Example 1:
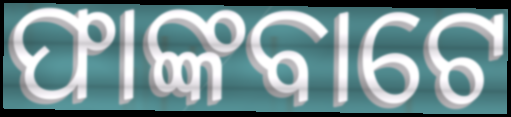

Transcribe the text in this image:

ଫାଙ୍କବାଟେ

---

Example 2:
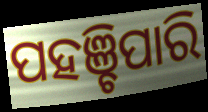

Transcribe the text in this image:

ପହଞ୍ଚିପାରି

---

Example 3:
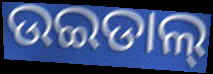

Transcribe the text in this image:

ଉଇଡାଲ୍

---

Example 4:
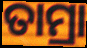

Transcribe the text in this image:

ତାମ୍ରା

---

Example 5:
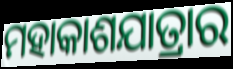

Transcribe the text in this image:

ମହାକାଶଯାତ୍ରାର